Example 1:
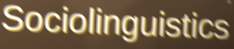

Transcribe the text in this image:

Sociolinguistics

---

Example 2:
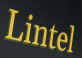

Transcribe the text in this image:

Lintel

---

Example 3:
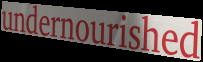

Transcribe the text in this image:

undernourished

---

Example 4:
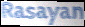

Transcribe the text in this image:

Rasayan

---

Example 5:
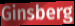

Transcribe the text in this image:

Ginsberg